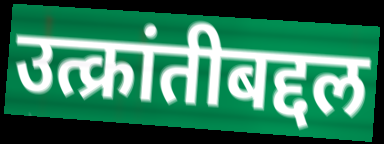
उत्क्रांतीबद्दल